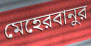
মেহেরবানুর